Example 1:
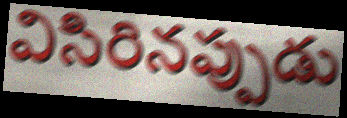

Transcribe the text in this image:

విసిరినప్పుడు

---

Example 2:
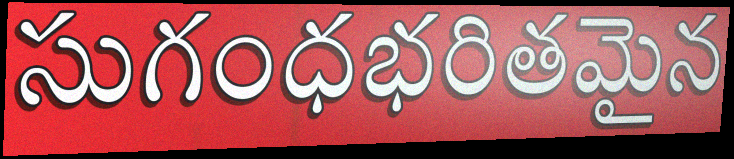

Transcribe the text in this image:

సుగంధభరితమైన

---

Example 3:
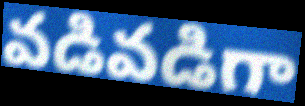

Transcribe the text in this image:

వడివడిగా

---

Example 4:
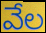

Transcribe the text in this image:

వేల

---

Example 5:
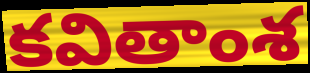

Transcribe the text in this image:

కవితాంశ